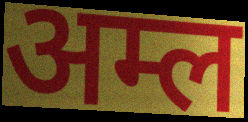
अम्ल